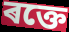
ৰক্তে